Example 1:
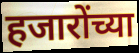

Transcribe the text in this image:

हजारोंच्या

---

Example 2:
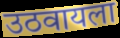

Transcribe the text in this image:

उठवायला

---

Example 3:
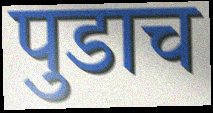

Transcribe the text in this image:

पुडाच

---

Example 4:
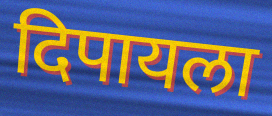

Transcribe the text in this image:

दिपायला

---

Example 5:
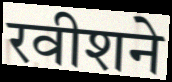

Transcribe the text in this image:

रवीशने